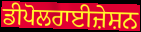
ਡੀਪੋਲਰਾਈਜ਼ੇਸ਼ਨ